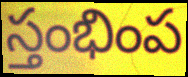
స్తంభింప